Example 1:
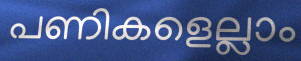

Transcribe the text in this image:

പണികളെല്ലാം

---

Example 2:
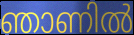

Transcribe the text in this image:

ഞാണിൽ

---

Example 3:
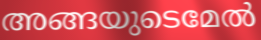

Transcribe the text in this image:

അങ്ങയുടെമേൽ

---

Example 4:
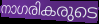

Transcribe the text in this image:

നാഗരികരുടെ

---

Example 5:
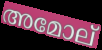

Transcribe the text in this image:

അമോല്